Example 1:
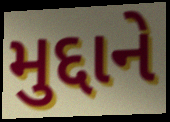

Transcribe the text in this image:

મુદ્દાને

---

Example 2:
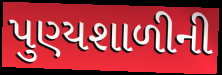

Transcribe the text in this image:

પુણ્યશાળીની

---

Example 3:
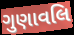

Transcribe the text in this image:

ગુણાવલિ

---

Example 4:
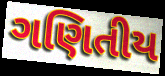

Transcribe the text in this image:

ગણિતીય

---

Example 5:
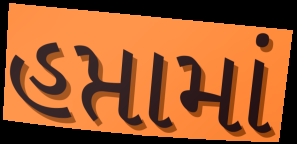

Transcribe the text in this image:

હપ્તામાં